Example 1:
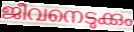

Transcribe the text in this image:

ജീവനെടുക്കും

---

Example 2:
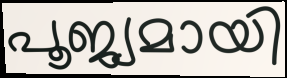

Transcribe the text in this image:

പൂജ്യമായി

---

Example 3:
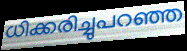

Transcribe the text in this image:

ധിക്കരിച്ചുപറഞ്ഞ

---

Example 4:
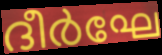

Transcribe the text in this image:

ദീർഘേ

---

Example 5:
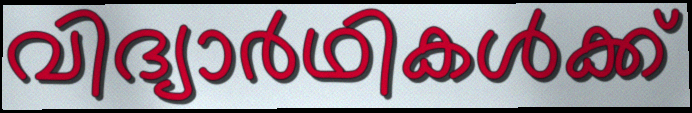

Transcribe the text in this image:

വിദ്യാർഥികൾക്ക്